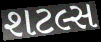
શટલ્સ